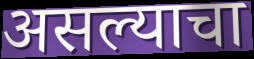
असल्याचा